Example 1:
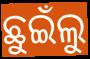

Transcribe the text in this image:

ଛୁଇଁଲୁ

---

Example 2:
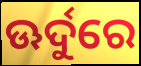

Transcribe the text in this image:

ଊର୍ଦୁରେ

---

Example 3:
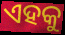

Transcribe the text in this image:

ଏହକୁ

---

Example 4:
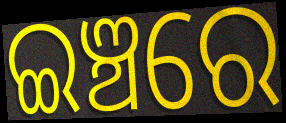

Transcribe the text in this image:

ଇଞ୍ଚରେ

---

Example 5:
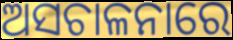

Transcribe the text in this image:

ଅସଚାଳନାରେ